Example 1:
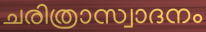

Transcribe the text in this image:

ചരിത്രാസ്വാദനം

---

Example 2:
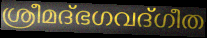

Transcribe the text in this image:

ശ്രീമദ്ഭഗവദ്ഗീത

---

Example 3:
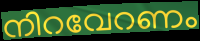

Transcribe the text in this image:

നിറവേറണം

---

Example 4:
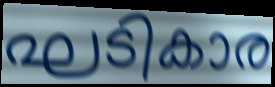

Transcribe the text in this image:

ഘടികാര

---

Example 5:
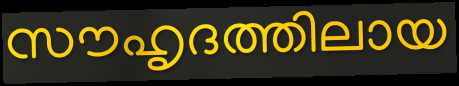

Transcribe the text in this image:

സൗഹൃദത്തിലായ